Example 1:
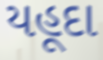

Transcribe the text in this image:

યહૂદા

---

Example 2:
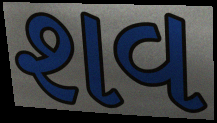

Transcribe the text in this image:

શવ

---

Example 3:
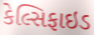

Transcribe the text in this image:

કેલ્સિફાઇડ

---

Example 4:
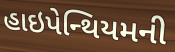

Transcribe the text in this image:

હાઇપેન્થિયમની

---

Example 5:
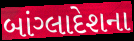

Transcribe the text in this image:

બાંગ્લાદેશના